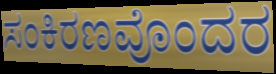
ಸಂಕಿರಣವೊಂದರ